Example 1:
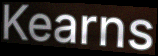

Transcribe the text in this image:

Kearns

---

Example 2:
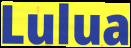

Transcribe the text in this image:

Lulua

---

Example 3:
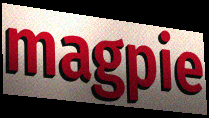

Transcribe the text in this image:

magpie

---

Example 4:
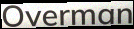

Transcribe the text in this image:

Overman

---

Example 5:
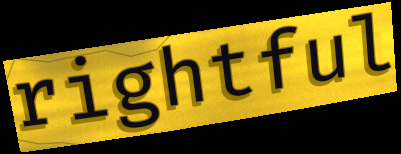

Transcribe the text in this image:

rightful